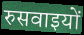
रुसवाइयों